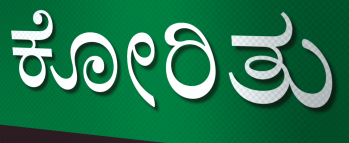
ಕೋರಿತು